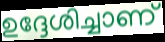
ഉദ്ദേശിച്ചാണ്